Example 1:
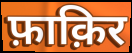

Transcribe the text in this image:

फ़ाक़िर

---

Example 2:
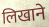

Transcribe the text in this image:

लिखाने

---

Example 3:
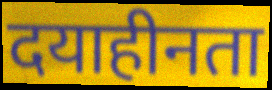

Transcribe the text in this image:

दयाहीनता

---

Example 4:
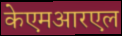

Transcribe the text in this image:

केएमआरएल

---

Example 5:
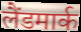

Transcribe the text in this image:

लैंडमार्क